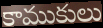
కాముకులు